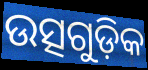
ଉତ୍ସଗୁଡ଼ିକ